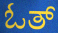
ಓತ್